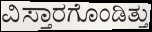
ವಿಸ್ತಾರಗೊಂಡಿತ್ತು